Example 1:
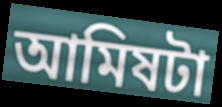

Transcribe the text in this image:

আমিষটা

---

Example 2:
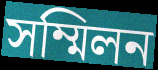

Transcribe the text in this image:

সম্মিলন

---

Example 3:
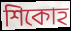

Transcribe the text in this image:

শিকোহ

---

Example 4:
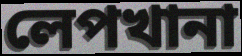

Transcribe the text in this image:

লেপখানা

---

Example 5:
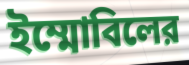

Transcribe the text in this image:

ইম্মোবিলের